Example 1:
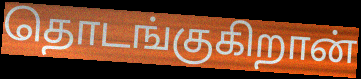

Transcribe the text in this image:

தொடங்குகிறான்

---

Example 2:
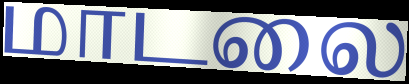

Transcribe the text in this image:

மாடலை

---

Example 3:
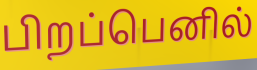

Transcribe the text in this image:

பிறப்பெனில்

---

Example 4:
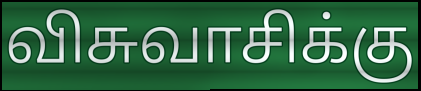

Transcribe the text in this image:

விசுவாசிக்கு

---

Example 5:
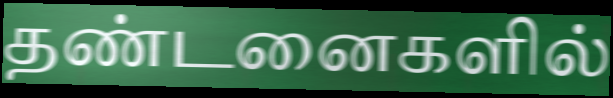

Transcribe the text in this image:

தண்டனைகளில்